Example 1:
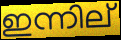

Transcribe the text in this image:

ഇന്നില്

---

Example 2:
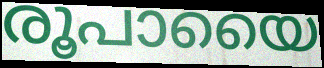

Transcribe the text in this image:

രൂപായൈ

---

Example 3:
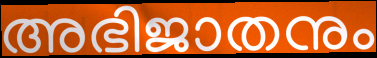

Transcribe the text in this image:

അഭിജാതനും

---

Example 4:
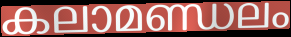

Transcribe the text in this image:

കലാമണ്ഡലം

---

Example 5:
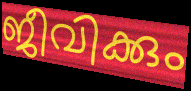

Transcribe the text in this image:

ജീവിക്കും